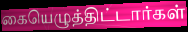
கையெழுத்திட்டார்கள்